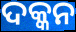
ଦକ୍କନ